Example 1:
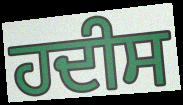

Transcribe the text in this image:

ਹਦੀਸ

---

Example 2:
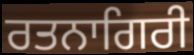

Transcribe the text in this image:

ਰਤਨਾਗਿਰੀ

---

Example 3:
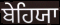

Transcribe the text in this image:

ਬੇਹਿਯਾ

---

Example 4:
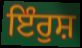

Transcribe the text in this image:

ਇੰਰੁਸ਼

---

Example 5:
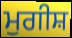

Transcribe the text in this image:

ਮੁਗੀਸ਼